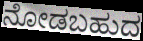
ನೋಡಬಹುದ